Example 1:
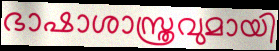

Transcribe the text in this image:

ഭാഷാശാസ്ത്രവുമായി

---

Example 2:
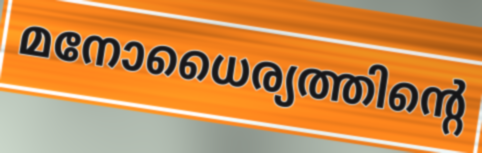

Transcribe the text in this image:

മനോധൈര്യത്തിന്റെ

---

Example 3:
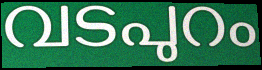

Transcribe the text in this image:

വടപുറം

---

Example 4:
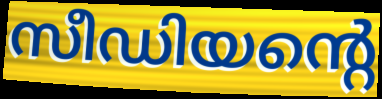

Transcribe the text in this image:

സീഡിയന്റെ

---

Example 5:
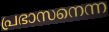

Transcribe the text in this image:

പ്രഭാസനെന്ന